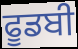
ਫੂਡਬੀ